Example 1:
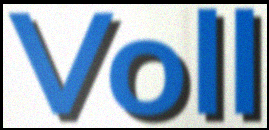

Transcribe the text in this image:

Voll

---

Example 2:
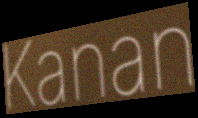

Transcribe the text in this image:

Kanan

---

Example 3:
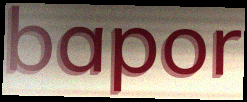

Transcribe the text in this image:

bapor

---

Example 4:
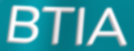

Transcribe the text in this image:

BTIA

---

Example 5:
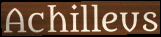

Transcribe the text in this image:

Achilleus